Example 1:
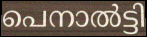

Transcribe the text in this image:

പെനാൽട്ടി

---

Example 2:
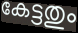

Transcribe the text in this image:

കേട്ടതും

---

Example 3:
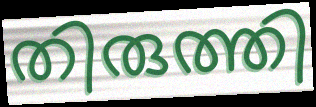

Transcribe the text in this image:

തിരുത്തി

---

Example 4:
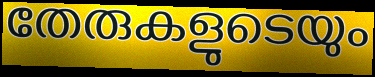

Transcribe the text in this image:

തേരുകളുടെയും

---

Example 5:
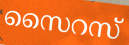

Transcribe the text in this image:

സൈറസ്